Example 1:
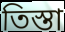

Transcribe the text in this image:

তিস্তা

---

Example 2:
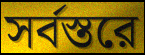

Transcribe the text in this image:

সর্বস্তরে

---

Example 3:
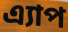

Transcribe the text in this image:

এ্যাপ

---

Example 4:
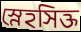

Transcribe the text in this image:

স্নেহসিক্ত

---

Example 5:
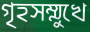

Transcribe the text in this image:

গৃহসম্মুখে